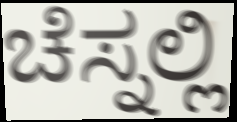
ಚೆಸ್ನಲ್ಲಿ